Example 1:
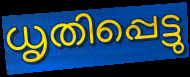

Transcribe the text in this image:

ധൃതിപ്പെട്ടു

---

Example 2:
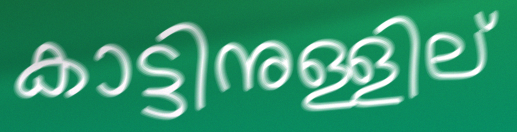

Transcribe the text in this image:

കാട്ടിനുള്ളില്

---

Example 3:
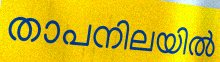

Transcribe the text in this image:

താപനിലയിൽ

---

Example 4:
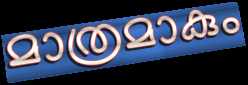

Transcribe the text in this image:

മാത്രമാകും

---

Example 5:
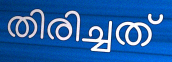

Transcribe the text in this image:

തിരിച്ചത്